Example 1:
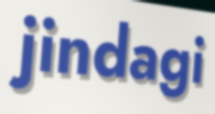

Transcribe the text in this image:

jindagi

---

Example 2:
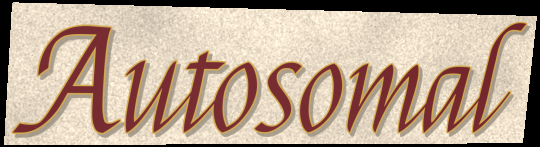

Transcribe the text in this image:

Autosomal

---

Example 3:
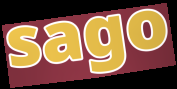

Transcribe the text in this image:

sago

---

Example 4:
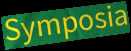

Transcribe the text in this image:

Symposia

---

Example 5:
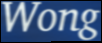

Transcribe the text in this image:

Wong